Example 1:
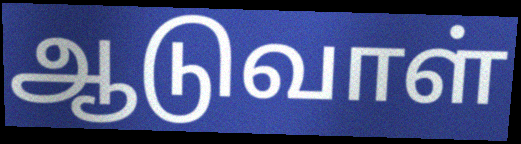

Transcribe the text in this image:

ஆடுவாள்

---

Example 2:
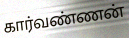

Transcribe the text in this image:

கார்வண்ணன்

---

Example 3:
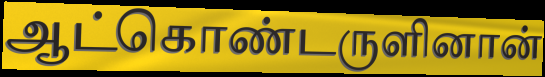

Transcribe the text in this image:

ஆட்கொண்டருளினான்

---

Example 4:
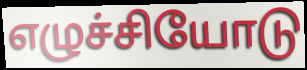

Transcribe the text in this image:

எழுச்சியோடு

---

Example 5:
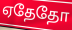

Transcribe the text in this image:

ஏதேதோ